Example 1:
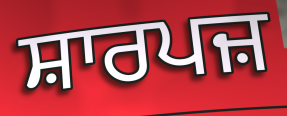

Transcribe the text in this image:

ਸ਼ਾਰਪਜ਼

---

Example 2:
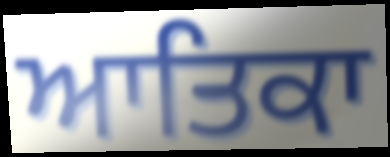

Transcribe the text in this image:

ਆਤਿਕਾ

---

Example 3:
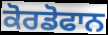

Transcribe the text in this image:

ਕੋਰਡੋਫਾਨ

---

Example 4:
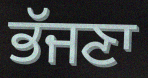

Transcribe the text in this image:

ਭੱਜਣਾ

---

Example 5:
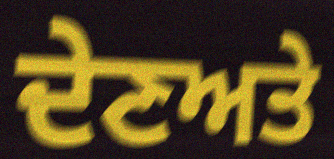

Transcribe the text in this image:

ਦੇਣਅਤੇ